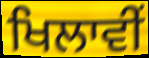
ਖਿਲਾਵੀਂ